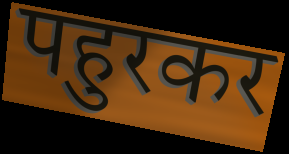
पहुरकर